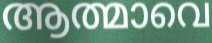
ആത്മാവെ